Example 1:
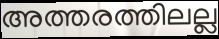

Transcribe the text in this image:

അത്തരത്തിലല്ല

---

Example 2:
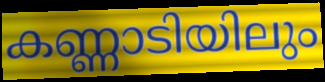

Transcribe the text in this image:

കണ്ണാടിയിലും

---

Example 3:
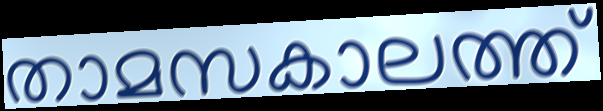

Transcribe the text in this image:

താമസകാലത്ത്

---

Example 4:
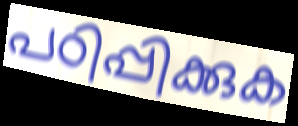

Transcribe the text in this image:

പഠിപ്പിക്കുക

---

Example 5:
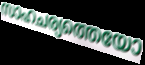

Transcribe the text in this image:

സാഹചര്യത്തെയോ